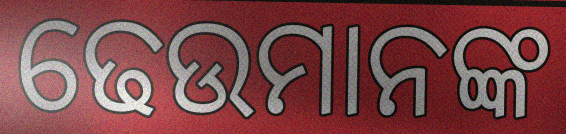
ଢେଉମାନଙ୍କ